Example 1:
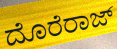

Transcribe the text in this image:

ದೊರೆರಾಜ್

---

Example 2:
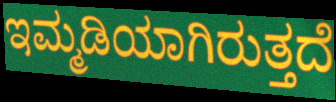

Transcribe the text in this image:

ಇಮ್ಮಡಿಯಾಗಿರುತ್ತದೆ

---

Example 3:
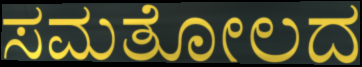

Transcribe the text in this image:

ಸಮತೋಲದ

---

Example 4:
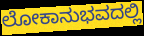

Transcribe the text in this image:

ಲೋಕಾನುಭವದಲ್ಲಿ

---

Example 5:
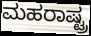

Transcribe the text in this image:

ಮಹರಾಷ್ಟ್ರ